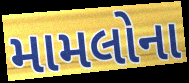
મામલોના